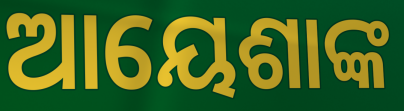
ଆୟେଶାଙ୍କ